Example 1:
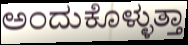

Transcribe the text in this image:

ಅಂದುಕೊಳ್ಳುತ್ತಾ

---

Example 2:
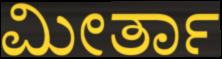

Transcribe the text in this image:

ಮೀರ್ತಾ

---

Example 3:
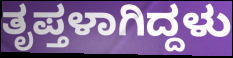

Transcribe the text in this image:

ತೃಪ್ತಳಾಗಿದ್ದಳು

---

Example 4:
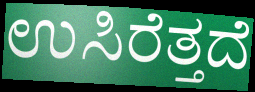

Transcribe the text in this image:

ಉಸಿರೆತ್ತದೆ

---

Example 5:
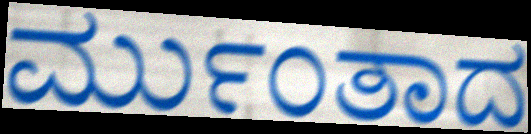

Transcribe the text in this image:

ರ್ಮುಂತಾದ